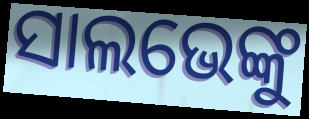
ସାଲଭେଙ୍କୁ